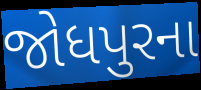
જોધપુરના